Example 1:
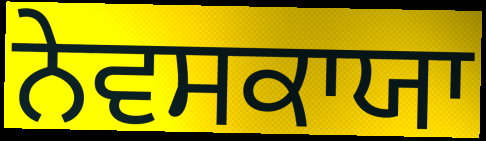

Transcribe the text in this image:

ਨੇਵਸਕਾਯਾ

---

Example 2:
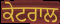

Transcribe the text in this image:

ਕੇਟਰਾਲ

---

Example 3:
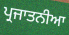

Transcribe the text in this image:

ਪ੍ਰਜਾਤਨੀਆ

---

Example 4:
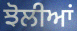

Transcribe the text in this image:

ਝੋਲੀਆਂ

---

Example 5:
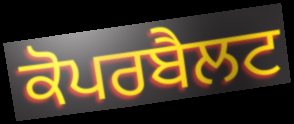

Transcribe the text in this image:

ਕੋਪਰਬੈਲਟ